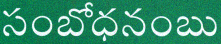
సంబోధనంబు